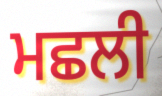
ਮਛਲੀ